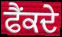
ਫੈਂਕਦੇ